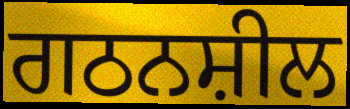
ਗਠਨਸ਼ੀਲ